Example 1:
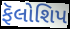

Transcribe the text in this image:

ફૅલોશિપ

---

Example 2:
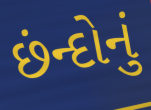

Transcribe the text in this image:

છંન્દોનું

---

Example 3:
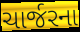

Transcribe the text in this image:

ચાર્જરના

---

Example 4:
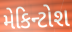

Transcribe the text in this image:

મેકિન્ટોશ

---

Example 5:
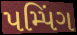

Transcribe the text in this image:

પમ્પિંગ